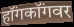
हॉंगकॉंगवर